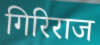
गिरिराज